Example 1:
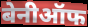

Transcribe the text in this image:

बेनीऑफ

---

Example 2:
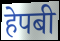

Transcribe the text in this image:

हेपबी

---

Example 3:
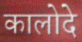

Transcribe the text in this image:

कालोदे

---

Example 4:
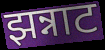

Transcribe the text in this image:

झन्नाट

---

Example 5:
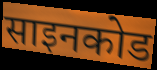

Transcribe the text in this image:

साइनकोड